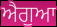
ਐਗੁਆ